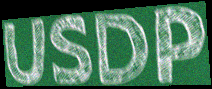
USDP